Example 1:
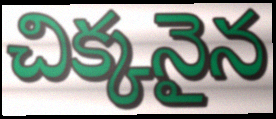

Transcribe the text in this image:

చిక్కనైన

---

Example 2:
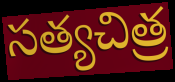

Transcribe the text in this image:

సత్యచిత్ర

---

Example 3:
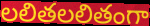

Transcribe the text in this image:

లలితలలితంగా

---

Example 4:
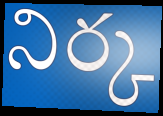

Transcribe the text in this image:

నిర్క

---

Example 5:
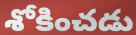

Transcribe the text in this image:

శోకించడు